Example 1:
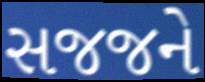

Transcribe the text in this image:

સજજને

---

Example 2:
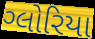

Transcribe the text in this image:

ગ્લોરિયા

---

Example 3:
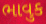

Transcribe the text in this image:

ભાવુક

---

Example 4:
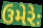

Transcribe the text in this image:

ઉમેરેઃ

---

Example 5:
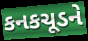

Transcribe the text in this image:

કનકચૂડને